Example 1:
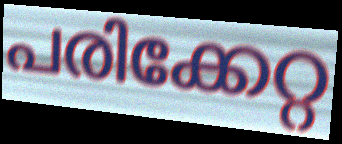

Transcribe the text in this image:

പരിക്കേറ്റ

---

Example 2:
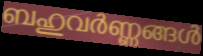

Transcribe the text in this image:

ബഹുവർണ്ണങ്ങൾ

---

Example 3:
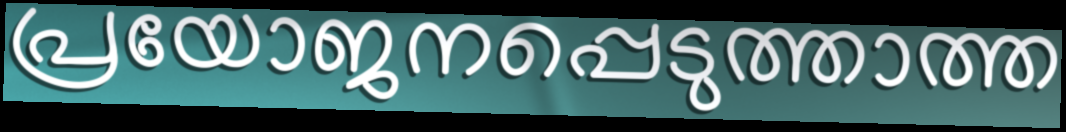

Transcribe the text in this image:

പ്രയോജനപ്പെടുത്താത്ത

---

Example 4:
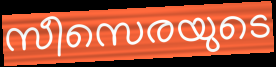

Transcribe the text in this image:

സീസെരയുടെ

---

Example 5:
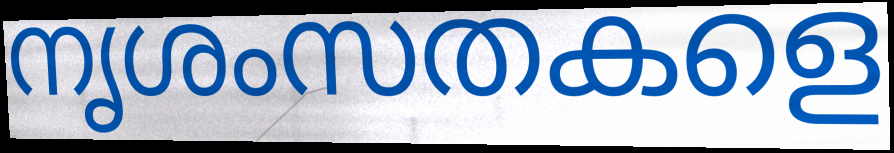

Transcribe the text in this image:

നൃശംസതകളെ